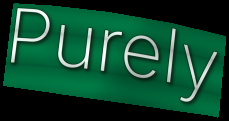
Purely